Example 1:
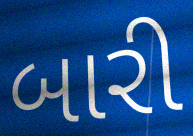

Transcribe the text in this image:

બારી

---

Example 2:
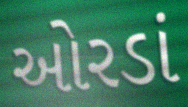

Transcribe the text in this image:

ઓરડાં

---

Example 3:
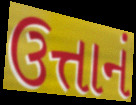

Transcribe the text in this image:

ઉત્તાનં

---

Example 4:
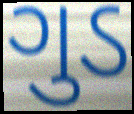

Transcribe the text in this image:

ગુડ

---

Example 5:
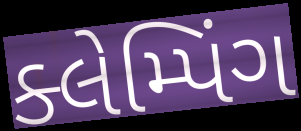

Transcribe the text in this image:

ક્લેમ્પિંગ